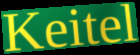
Keitel